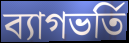
ব্যাগভর্তি